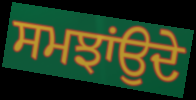
ਸਮਝਾਂਉਦੇ